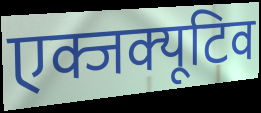
एक्जक्यूटिव